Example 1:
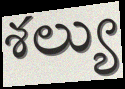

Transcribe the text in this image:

శల్యు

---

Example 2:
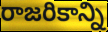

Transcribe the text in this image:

రాజరికాన్ని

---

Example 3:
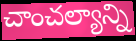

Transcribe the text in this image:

చాంచల్యాన్ని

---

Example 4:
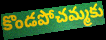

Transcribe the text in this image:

కొండపోచమ్మకు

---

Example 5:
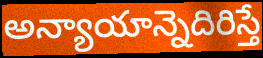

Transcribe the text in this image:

అన్యాయాన్నెదిరిస్తే